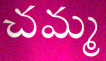
చమ్మ